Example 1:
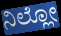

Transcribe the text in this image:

ನಿಲ್ಲೋ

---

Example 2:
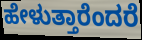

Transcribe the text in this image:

ಹೇಳುತ್ತಾರೆಂದರೆ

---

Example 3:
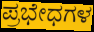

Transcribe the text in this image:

ಪ್ರಭೇಧಗಳ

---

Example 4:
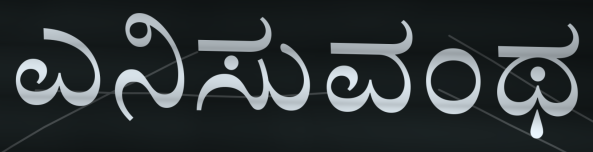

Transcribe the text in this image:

ಎನಿಸುವಂಥ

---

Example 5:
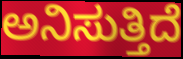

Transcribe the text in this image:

ಅನಿಸುತ್ತಿದೆ